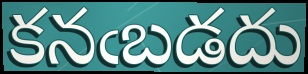
కనఁబడదు